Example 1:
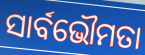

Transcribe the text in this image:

ସାର୍ବଭୌମତା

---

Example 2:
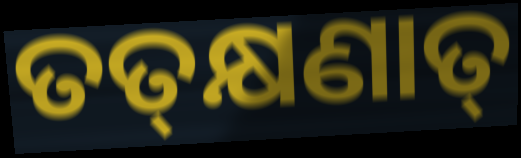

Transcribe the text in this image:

ତତ୍‍କ୍ଷଣାତ୍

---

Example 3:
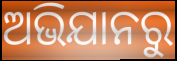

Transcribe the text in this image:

ଅଭିଯାନରୁ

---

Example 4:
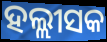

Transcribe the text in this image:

ହଲ୍ଲୀସକ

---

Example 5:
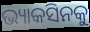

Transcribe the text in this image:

ଭ୍ୟାକସିନକୁ